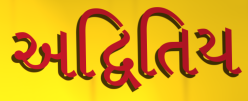
અદ્વિતિય